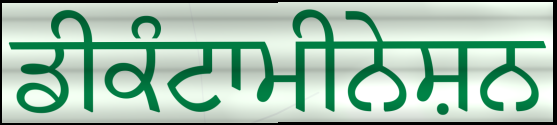
ਡੀਕੰਟਾਮੀਨੇਸ਼ਨ